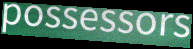
possessors